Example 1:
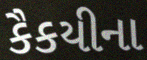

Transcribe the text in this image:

કૈકયીના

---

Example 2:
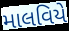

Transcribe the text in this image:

માલવિયે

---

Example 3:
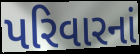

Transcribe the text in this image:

પરિવારનાં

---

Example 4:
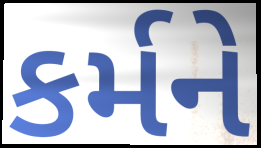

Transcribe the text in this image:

કર્મને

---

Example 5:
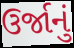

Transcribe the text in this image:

ઉર્જાનું